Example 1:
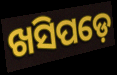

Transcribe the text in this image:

ଖସିପଡ଼େ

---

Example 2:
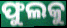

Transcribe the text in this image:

ଫୁଲକୁ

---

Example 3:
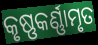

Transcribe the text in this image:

କୃଷ୍ଣକର୍ଣ୍ଣାମୃତ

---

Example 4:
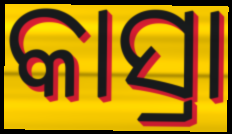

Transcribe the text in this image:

କାସ୍ରା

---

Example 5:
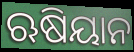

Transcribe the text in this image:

ଋଷିୟାନ